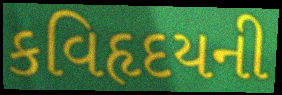
કવિહૃદયની